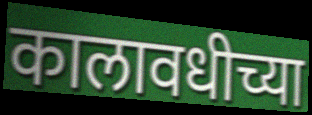
कालावधीच्या